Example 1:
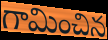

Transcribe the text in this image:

గామించిన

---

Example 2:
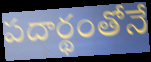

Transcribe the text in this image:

పదార్థంతోనే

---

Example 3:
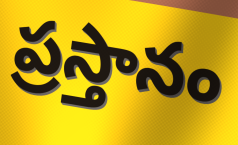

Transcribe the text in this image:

ప్రస్తానం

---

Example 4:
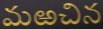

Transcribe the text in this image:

మఱచిన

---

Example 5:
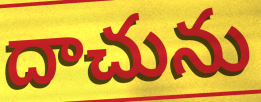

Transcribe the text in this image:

దాచును